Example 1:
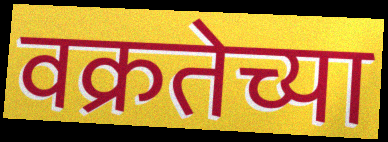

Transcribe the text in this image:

वक्रतेच्या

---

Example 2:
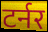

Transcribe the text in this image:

टर्नर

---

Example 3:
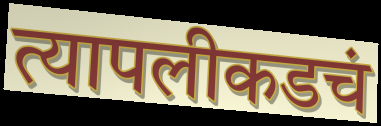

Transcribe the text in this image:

त्यापलीकडचं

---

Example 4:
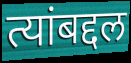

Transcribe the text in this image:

त्यांबद्दल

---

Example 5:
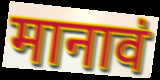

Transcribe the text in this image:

मानावं